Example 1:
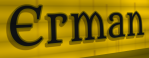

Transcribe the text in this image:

Erman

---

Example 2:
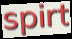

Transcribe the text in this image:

spirt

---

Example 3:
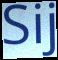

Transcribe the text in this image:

Sij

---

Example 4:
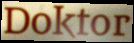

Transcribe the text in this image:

Doktor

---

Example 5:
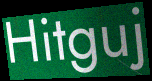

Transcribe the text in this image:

Hitguj